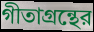
গীতাগ্রন্থের